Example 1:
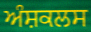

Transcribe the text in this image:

ਅੰਸ਼ਕਲਸ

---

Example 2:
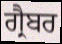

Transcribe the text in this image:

ਗ੍ਰੈਬਰ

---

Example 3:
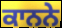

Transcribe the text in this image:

ਕਾਨਨੇ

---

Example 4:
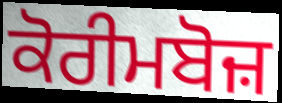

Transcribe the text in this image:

ਕੋਰੀਮਬੋਜ਼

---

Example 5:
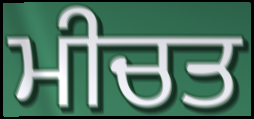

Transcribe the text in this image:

ਮੀਚਤ